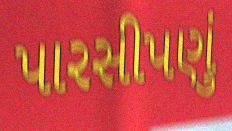
પારસીપણું